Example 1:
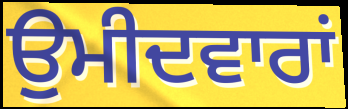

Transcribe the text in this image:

ਉੁਮੀਦਵਾਰਾਂ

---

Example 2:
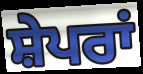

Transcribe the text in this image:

ਸ਼ੇਪਰਾਂ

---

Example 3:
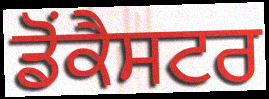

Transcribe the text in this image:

ਡੋਂਕੈਸਟਰ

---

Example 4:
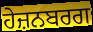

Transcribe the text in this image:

ਹੇਜ਼ਨਬਰਗ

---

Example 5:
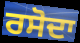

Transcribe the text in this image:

ਰਸੋਦਾ